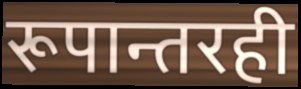
रूपान्तरही